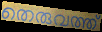
തെരുവത്ത്